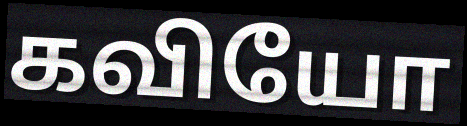
கவியோ